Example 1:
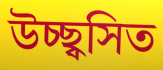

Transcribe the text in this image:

উচ্ছ্বসিত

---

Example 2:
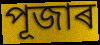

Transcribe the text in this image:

পূজাৰ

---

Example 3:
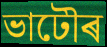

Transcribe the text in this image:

ভাটৌৰ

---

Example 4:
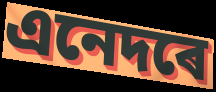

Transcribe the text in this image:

এনেদৰে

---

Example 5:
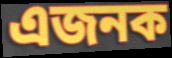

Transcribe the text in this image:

এজনক